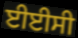
ਈਈਸੀ